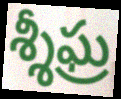
శ్శీఘ్ర